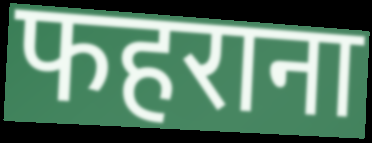
फहराना